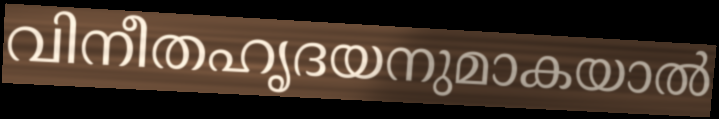
വിനീതഹൃദയനുമാകയാൽ